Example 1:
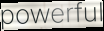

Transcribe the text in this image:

powerful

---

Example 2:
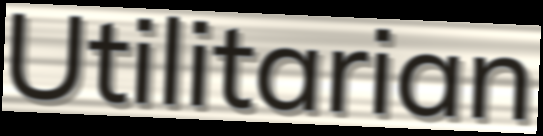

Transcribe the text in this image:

Utilitarian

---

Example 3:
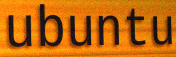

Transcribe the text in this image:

ubuntu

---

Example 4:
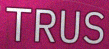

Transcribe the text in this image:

TRUS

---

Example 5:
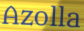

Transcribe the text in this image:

Azolla